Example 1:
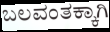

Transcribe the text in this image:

ಬಲವಂತಕ್ಕಾಗಿ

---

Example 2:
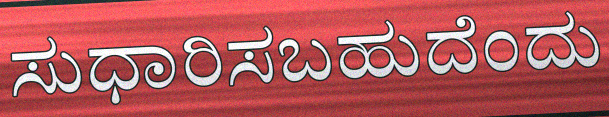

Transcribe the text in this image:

ಸುಧಾರಿಸಬಹುದೆಂದು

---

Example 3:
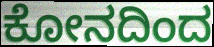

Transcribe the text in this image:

ಕೋನದಿಂದ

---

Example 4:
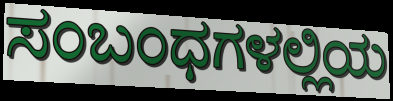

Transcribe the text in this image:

ಸಂಬಂಧಗಳಲ್ಲಿಯ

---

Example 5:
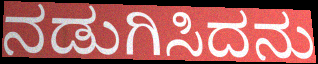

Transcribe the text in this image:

ನಡುಗಿಸಿದನು